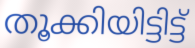
തൂക്കിയിട്ടിട്ട്